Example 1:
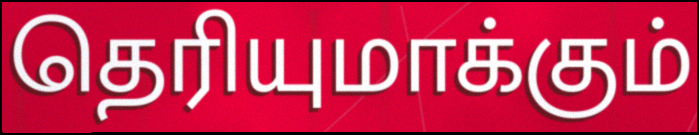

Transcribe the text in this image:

தெரியுமாக்கும்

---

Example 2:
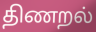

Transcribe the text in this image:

திணறல்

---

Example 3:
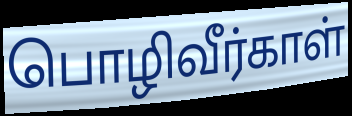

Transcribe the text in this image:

பொழிவீர்காள்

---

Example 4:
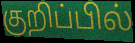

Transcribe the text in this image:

குறிப்பில்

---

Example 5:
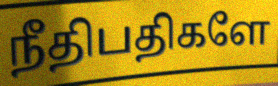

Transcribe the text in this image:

நீதிபதிகளே